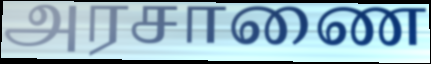
அரசாணை